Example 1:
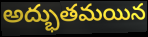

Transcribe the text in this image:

అద్భుతమయిన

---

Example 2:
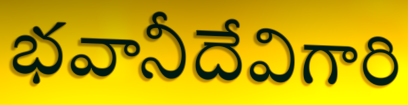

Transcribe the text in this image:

భవానీదేవిగారి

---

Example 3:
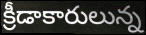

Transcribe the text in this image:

క్రీడాకారులున్న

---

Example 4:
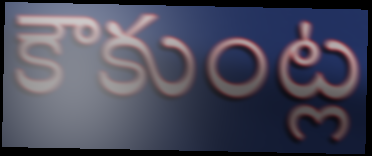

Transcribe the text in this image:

కౌకుంట్ల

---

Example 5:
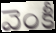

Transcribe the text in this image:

వెంకీ